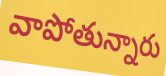
వాపోతున్నారు